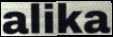
alika